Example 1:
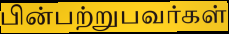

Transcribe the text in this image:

பின்பற்றுபவர்கள்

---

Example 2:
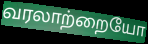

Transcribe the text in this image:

வரலாற்றையோ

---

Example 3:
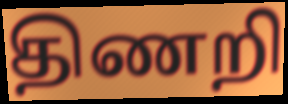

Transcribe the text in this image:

திணறி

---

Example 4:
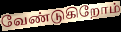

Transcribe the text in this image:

வேண்டுகிறோம்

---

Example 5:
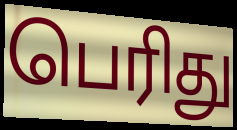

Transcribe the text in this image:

பெரிது